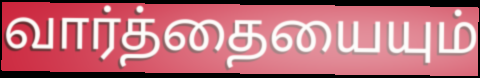
வார்த்தையையும்